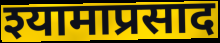
श्यामाप्रसाद